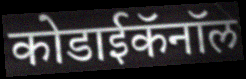
कोडाईकॅनॉल